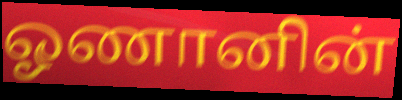
ஓணானின்